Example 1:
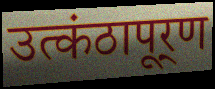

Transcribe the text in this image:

उत्कंठापूर्ण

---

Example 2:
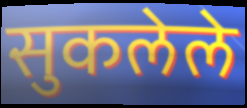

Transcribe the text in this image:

सुकलेले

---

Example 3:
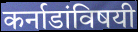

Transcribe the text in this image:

कर्नाडांविषयी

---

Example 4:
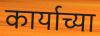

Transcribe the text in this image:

कार्याच्या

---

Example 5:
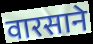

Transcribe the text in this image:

वारसाने